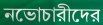
নভোচারীদের